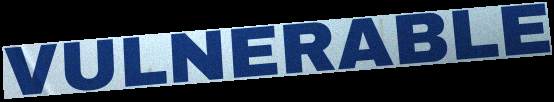
VULNERABLE